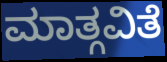
ಮಾತ್ಗವಿತೆ